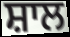
ਸ਼ਾਲ